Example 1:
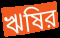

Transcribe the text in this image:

ঋষির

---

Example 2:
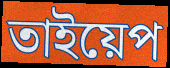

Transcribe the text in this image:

তাইয়েপ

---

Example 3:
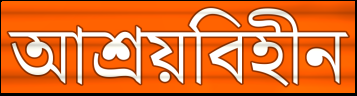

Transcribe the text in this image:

আশ্রয়বিহীন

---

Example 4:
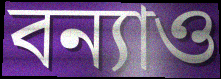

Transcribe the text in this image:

বন্যাও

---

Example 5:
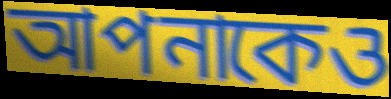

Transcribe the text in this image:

আপনাকেও